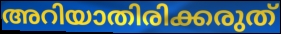
അറിയാതിരിക്കരുത്